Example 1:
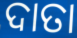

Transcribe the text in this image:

ଦାତା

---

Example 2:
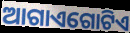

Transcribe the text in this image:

ଆଗାଏଗୋଟିଏ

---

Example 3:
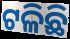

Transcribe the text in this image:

ଟଳିଛି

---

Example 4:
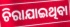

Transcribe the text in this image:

ଚିରାଯାଇଥିବା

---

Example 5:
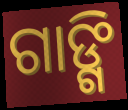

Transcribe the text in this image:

ଗାଙ୍ଗି